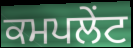
ਕਮਪਲੇਂਟ